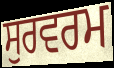
ਸੁਰਵਰਮ